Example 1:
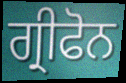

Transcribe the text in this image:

ਗ੍ਰੀਫੋਨ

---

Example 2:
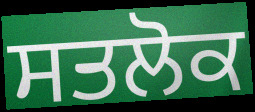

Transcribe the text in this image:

ਸਤਲੋਕ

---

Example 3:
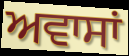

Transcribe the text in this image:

ਅਵਾਸਾਂ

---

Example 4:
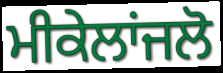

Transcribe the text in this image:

ਮੀਕੇਲਾਂਜਲੋ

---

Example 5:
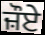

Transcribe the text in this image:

ਜ਼ੌਏ